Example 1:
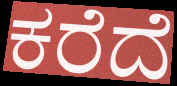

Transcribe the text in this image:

ಕರೆದೆ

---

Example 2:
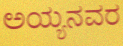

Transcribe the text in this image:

ಅಯ್ಯನವರ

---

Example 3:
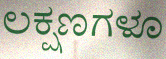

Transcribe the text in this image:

ಲಕ್ಷಣಗಳೂ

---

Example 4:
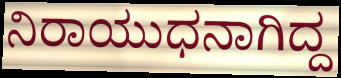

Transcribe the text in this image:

ನಿರಾಯುಧನಾಗಿದ್ದ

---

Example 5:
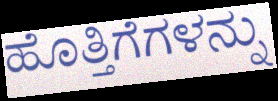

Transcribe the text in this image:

ಹೊತ್ತಿಗೆಗಳನ್ನು